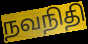
நவநிதி